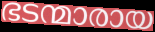
ഭടന്മാരായ